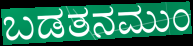
ಬಡತನಮುಂ